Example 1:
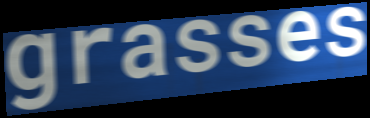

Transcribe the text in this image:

grasses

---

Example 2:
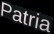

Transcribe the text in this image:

Patria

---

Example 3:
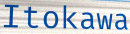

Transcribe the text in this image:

Itokawa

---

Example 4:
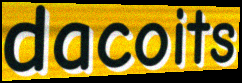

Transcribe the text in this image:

dacoits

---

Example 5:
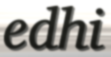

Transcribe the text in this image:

edhi